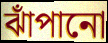
ঝাঁপানো